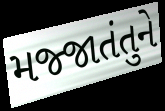
મજ્જાતંતુને